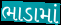
ભાડામાં